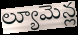
ల్యూమెన్ల